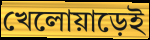
খেলোয়াড়েই